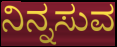
ನಿನ್ನಸುವ